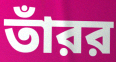
তাঁরর